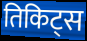
तिकिट्स